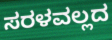
ಸರಳವಲ್ಲದ